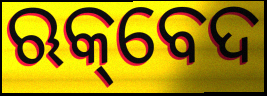
ଋକ୍‌ବେଦ